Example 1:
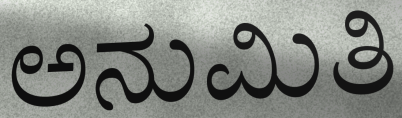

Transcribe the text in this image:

ಅನುಮಿತಿ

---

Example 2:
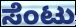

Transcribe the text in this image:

ಸೆಂಟು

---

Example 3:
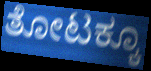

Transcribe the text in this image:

ತೋಟಕ್ಕೂ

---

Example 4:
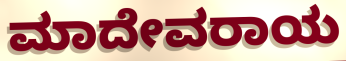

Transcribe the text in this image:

ಮಾದೇವರಾಯ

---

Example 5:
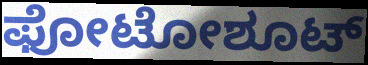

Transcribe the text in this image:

ಫೋಟೋಶೂಟ್